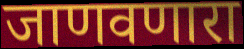
जाणवणारा